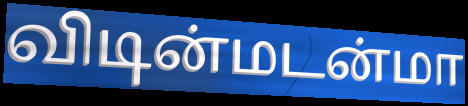
விடின்மடன்மா